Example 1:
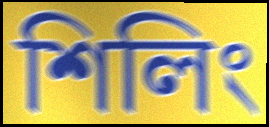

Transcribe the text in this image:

শিলিং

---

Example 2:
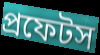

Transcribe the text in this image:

প্রফেটস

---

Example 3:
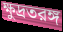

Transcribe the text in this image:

ক্ষুদ্রতরঙ্গ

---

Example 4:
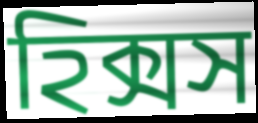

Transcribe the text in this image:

হিক্সস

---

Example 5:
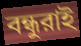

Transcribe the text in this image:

বন্ধুরাই